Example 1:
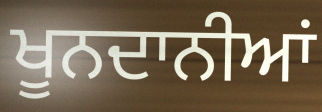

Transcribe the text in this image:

ਖੂਨਦਾਨੀਆਂ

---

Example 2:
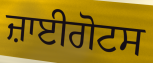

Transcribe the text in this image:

ਜ਼ਾਈਗੋਟਸ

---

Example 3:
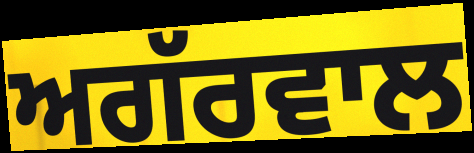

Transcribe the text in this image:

ਅਗੱਰਵਾਲ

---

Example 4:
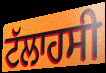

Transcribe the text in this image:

ਟੱਲਾਹਸੀ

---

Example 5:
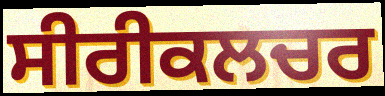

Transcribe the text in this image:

ਸੀਰੀਕਲਚਰ